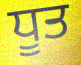
ਧੂਤ